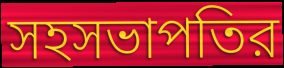
সহসভাপতির